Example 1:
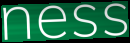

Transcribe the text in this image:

ness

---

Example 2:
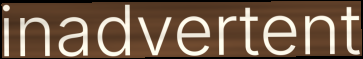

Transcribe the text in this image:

inadvertent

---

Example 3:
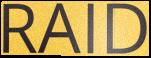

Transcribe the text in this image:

RAID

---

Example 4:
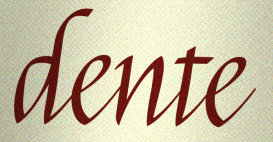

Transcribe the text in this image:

dente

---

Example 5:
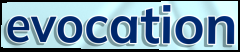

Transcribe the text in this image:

evocation